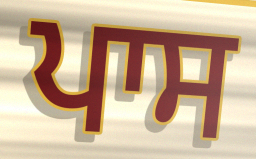
ਪਾਸ